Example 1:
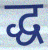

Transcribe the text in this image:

द्ध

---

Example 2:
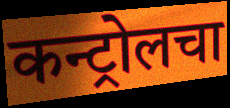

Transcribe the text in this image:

कन्ट्रोलचा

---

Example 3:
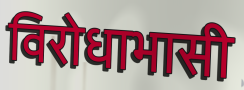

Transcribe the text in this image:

विरोधाभासी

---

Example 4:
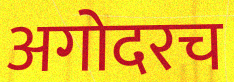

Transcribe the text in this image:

अगोदरच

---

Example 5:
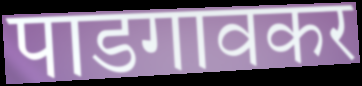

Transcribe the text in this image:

पाडगावकर